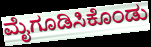
ಮೈಗೂಡಿಸಿಕೊಂಡು